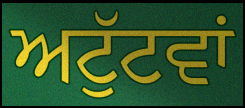
ਅਟੁੱਟਵਾਂ